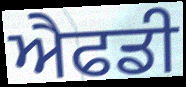
ਐਫਡੀ